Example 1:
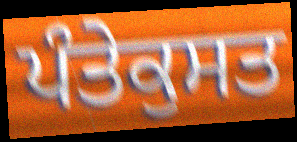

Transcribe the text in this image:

ਪੰਤੇਕੁਸਤ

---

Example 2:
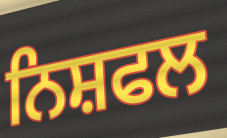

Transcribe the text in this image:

ਨਿਸ਼ਫਲ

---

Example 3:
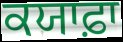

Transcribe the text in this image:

ਕਯਾਫ਼ਾ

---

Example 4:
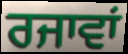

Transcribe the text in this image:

ਰਜਾਵਾਂ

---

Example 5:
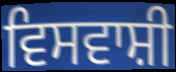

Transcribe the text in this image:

ਵਿਸਵਾਸ਼ੀ